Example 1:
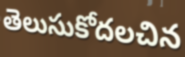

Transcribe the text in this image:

తెలుసుకోదలచిన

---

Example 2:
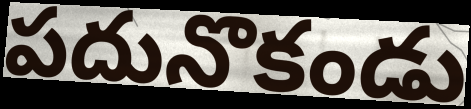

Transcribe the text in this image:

పదునొకండు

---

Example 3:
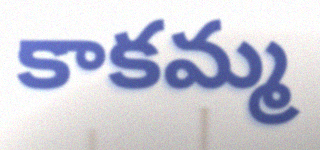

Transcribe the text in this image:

కాకమ్మ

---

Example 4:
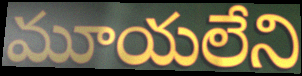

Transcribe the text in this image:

మూయలేని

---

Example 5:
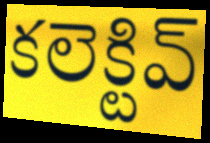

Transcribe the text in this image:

కలెక్టివ్